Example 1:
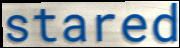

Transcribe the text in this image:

stared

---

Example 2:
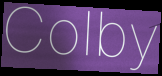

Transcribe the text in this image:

Colby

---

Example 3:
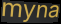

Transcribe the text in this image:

myna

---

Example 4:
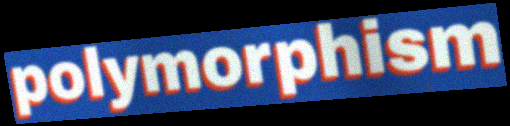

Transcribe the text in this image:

polymorphism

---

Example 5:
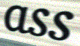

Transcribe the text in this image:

ass